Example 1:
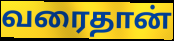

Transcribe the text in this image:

வரைதான்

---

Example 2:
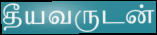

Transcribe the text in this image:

தீயவருடன்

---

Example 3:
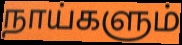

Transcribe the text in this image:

நாய்களும்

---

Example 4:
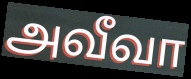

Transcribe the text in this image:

அவீவா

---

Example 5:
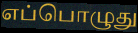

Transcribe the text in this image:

எப்பொழுது